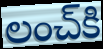
లంచ్‌కి